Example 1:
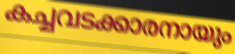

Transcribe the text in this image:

കച്ചവടക്കാരനായും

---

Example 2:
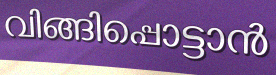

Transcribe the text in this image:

വിങ്ങിപ്പൊട്ടാൻ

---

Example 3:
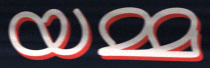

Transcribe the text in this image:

യമ്മ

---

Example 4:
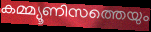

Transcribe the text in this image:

കമ്മ്യൂണിസത്തെയും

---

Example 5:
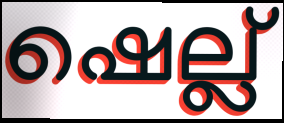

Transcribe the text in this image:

ഷെല്ല്